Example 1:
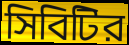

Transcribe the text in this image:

সিবিটির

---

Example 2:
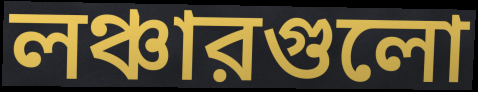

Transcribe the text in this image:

লঞ্চারগুলো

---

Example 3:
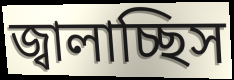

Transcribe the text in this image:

জ্বালাচ্ছিস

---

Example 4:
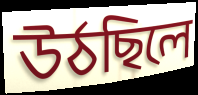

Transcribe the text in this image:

উঠছিলে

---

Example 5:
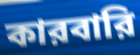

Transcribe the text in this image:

কারবারি